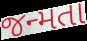
જન્મતા